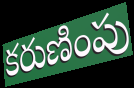
కరుణింపు